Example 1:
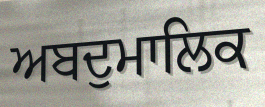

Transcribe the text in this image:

ਅਬਦੁਮਾਲਿਕ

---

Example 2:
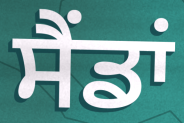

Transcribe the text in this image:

ਸੈਂਡਾਂ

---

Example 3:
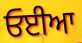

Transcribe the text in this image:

ਓਈਆ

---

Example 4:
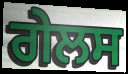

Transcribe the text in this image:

ਗੇਲਸ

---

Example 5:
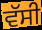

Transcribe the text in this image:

ਵੱਸੀ